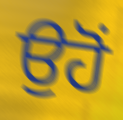
ਉਹੋਂ